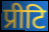
प्रीटि